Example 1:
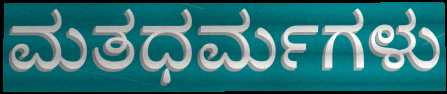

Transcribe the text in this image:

ಮತಧರ್ಮಗಳು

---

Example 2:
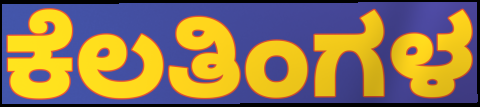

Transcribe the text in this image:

ಕೆಲತಿಂಗಳ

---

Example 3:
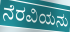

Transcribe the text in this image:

ನೆರವಿಯನು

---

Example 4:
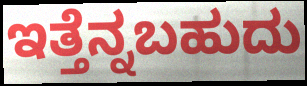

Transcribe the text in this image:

ಇತ್ತೆನ್ನಬಹುದು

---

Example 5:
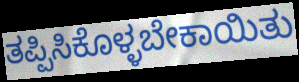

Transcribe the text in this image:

ತಪ್ಪಿಸಿಕೊಳ್ಳಬೇಕಾಯಿತು